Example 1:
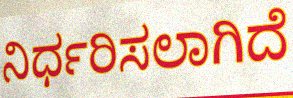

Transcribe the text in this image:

ನಿರ್ಧರಿಸಲಾಗಿದೆ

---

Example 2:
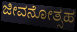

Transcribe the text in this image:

ಜೀವನೋತ್ಸಹ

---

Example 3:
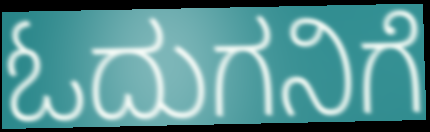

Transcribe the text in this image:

ಓದುಗನಿಗೆ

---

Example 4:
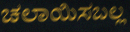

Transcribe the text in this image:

ಚಲಾಯಿಸಬಲ್ಲ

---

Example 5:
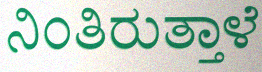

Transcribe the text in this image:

ನಿಂತಿರುತ್ತಾಳೆ